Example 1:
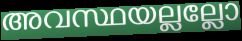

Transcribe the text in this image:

അവസ്ഥയല്ലല്ലോ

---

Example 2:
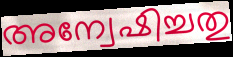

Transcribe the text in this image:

അന്വേഷിച്ചതു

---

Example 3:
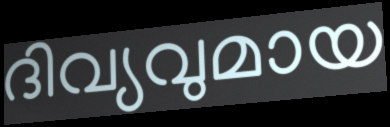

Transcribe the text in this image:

ദിവ്യവുമായ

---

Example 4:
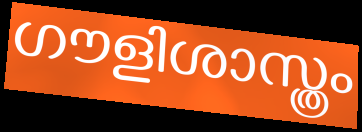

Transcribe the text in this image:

ഗൗളിശാസ്ത്രം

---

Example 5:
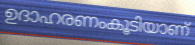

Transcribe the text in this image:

ഉദാഹരണംകൂടിയാണ്